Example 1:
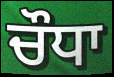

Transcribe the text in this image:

ਚੌਧਾ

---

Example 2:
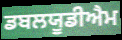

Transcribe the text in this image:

ਡਬਲਯੂਡੀਐਮ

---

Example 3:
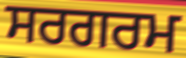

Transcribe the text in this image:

ਸਰਗਰਮ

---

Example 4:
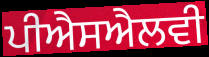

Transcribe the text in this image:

ਪੀਐਸਐਲਵੀ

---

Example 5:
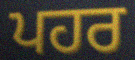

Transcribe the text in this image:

ਪਹਰ